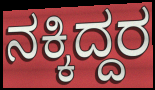
ನಕ್ಕಿದ್ದರ